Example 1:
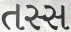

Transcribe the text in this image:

તસ્સ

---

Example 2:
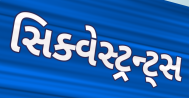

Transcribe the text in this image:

સિક્વેસ્ટ્રન્ટ્સ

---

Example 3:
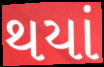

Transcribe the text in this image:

થયાં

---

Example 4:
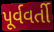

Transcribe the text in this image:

પૂર્વવર્તી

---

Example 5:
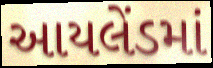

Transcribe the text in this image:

આયલેંડમાં